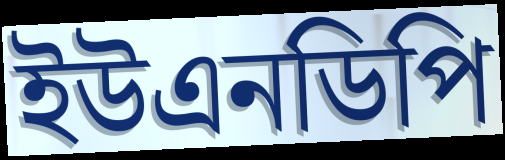
ইউএনডিপি